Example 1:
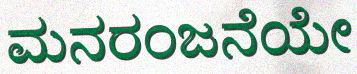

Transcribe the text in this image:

ಮನರಂಜನೆಯೇ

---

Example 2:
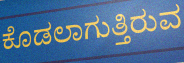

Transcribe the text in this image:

ಕೊಡಲಾಗುತ್ತಿರುವ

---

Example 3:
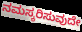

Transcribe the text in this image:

ನಮಸ್ಕರಿಸುವುದೇ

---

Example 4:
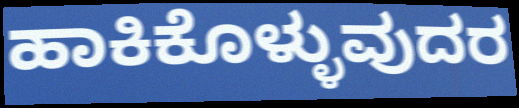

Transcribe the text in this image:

ಹಾಕಿಕೊಳ್ಳುವುದರ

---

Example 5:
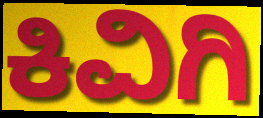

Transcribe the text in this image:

ಕಿವಿಗಿ